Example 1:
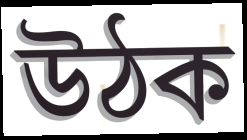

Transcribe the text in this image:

উঠক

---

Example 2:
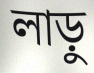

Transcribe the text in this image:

লাড়ু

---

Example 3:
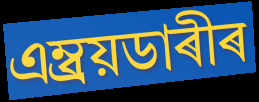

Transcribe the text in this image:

এম্ব্ৰয়ডাৰীৰ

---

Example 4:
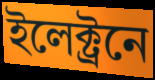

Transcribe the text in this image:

ইলেক্ট্ৰনে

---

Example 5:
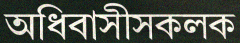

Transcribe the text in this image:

অধিবাসীসকলক